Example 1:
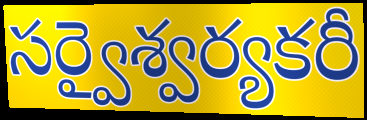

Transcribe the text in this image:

సర్వైశ్వర్యకరీ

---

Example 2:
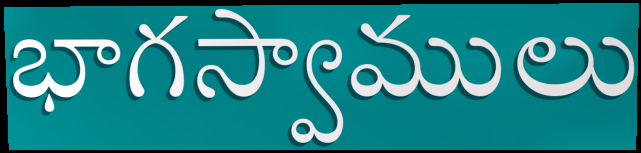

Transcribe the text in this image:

భాగస్వాములు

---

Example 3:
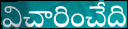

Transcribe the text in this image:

విచారించేది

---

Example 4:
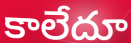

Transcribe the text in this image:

కాలేదూ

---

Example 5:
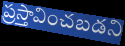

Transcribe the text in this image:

ప్రస్తావించబడని